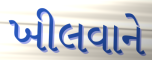
ખીલવાને